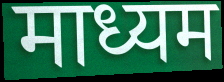
माध्यम